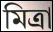
মিত্রা